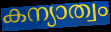
കന്യാത്വം